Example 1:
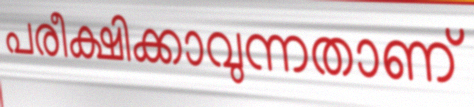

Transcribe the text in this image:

പരീക്ഷിക്കാവുന്നതാണ്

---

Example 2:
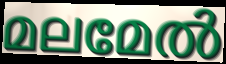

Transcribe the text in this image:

മലമേൽ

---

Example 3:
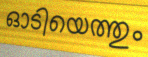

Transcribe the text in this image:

ഓടിയെത്തും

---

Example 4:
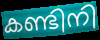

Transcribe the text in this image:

കണ്ടിനി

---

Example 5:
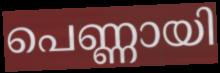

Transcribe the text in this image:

പെണ്ണായി